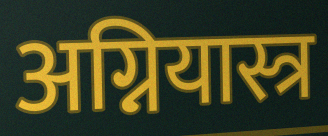
अग्नियास्त्र